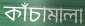
কাঁচামালা